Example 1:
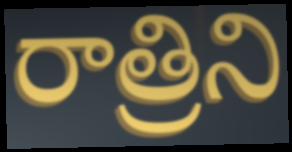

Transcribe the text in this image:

రాత్రిని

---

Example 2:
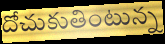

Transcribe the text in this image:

దోచుకుతింటున్న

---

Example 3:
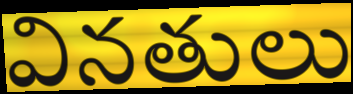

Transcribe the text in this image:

వినతులు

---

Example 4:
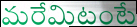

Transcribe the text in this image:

మరేమిటంటే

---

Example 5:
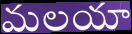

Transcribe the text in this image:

మలయా